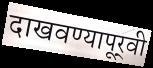
दाखवण्यापूर्वी